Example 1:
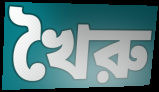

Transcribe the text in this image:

খৈরু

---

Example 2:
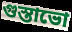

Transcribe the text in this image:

গুস্তাভো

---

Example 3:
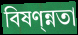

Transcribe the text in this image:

বিষণ্ন্নতা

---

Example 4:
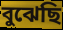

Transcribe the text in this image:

বুঝেছি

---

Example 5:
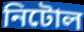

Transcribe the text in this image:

নিটোল